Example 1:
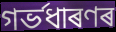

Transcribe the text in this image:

গৰ্ভধাৰণৰ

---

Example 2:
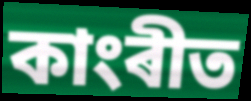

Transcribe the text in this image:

কাংৰীত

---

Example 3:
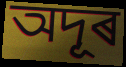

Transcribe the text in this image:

অদূৰ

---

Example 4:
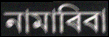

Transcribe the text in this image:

নামাৰিবা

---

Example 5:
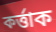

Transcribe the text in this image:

কৰ্ত্তাক